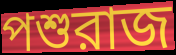
পশুরাজ